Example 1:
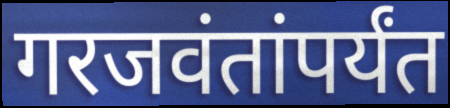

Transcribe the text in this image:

गरजवंतांपर्यंत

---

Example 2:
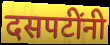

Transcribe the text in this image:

दसपटींनी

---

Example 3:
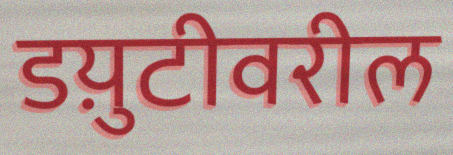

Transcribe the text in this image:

डय़ुटीवरील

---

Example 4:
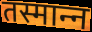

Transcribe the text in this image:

तस्मान्न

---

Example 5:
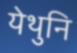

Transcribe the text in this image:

येथुनि